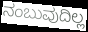
ನಂಬುವುದಿಲ್ಲ